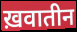
ख़वातीन